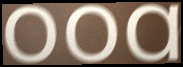
ooa